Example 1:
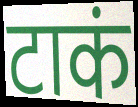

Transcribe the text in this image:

टाकं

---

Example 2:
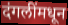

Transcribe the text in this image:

दंगलींमधून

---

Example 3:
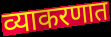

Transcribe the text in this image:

व्याकरणात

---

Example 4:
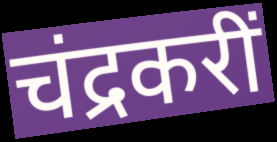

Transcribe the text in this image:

चंद्रकरीं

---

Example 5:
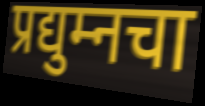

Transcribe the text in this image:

प्रद्युम्नचा